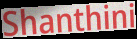
Shanthini